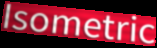
Isometric